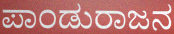
ಪಾಂಡುರಾಜನ